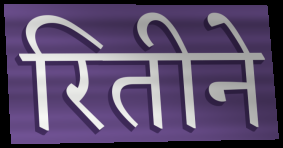
रितीने